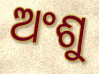
ଅଂଶୁ